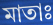
মাতাঃ